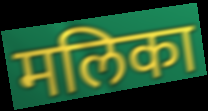
मलिका